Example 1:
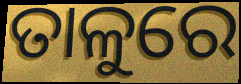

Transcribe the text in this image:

ତାଳୁରେ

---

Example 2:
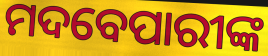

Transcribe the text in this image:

ମଦବେପାରୀଙ୍କ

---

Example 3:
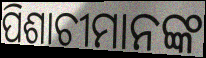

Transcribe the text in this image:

ପିଶାଚୀମାନଙ୍କ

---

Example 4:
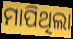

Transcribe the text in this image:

ମାପିଥିଲା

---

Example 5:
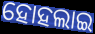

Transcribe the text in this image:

ହୋହଲାଇ